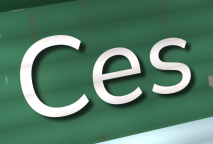
Ces